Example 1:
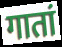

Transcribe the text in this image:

गातां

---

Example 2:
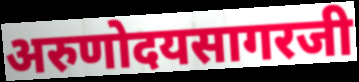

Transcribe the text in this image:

अरुणोदयसागरजी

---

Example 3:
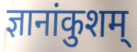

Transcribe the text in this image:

ज्ञानांकुशम्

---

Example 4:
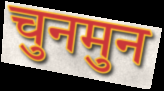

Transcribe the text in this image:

चुनमुन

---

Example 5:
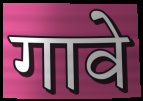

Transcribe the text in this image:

गावे